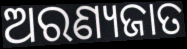
ଅରଣ୍ୟଜାତ